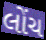
લોંચ